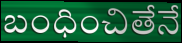
బంధించితేనే